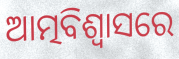
ଆତ୍ମବିଶ୍ଵାସରେ